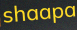
shaapa